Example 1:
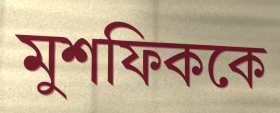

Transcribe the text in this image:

মুশফিককে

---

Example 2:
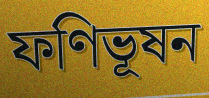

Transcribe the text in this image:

ফণিভূষন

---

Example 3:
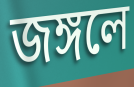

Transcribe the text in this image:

জঙ্গলে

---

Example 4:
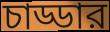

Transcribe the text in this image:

চাড্ডার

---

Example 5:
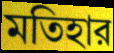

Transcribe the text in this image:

মতিহার